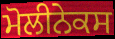
ਮੋਲੀਨੇਕਸ